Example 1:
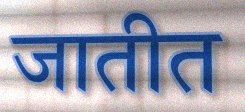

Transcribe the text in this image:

जातीत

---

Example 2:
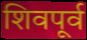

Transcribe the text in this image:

शिवपूर्व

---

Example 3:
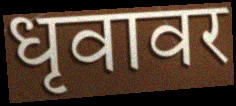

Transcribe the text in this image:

धृवावर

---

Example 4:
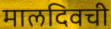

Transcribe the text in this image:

मालदिवची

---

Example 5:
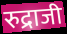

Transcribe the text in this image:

रुद्राजी